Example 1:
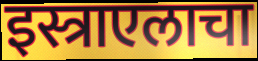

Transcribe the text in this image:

इस्त्राएलाचा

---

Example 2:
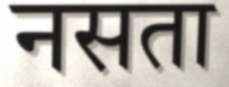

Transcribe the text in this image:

नसता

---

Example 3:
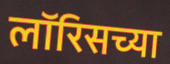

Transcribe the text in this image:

लॉरिसच्या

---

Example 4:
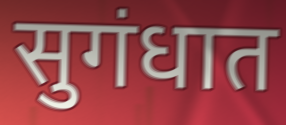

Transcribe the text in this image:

सुगंधात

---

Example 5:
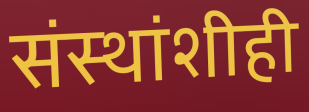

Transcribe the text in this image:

संस्थांशीही